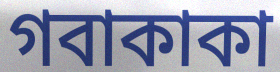
গবাকাকা